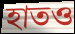
হাতও